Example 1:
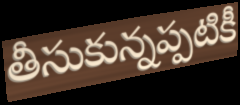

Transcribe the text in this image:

తీసుకున్నప్పటికీ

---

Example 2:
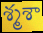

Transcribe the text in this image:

శ్మశా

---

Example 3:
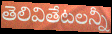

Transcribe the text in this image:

తెలివితేటలన్నీ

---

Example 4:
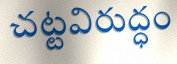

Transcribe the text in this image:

చట్టవిరుద్ధం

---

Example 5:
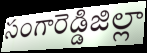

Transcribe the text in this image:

సంగారెడ్డిజిల్లా